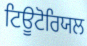
ਟਿਊਟੋਰਿਯਲ